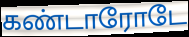
கண்டாரோடே